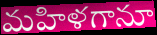
మహిళగానూ